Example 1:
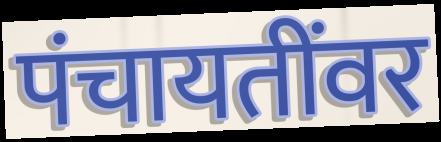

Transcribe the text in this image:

पंचायतींवर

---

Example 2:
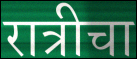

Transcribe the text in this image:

रात्रीचा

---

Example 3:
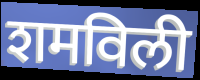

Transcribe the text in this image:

शमविली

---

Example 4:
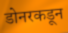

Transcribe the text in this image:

डोनरकडून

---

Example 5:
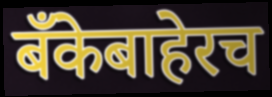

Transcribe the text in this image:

बँकेबाहेरच